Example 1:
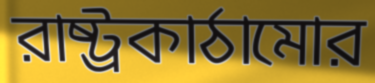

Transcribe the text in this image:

রাষ্ট্রকাঠামোর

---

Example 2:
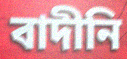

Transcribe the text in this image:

বাদীনি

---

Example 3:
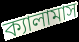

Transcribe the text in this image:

ক্যালামাস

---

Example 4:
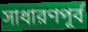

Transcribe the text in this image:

সাধারণপূর্ব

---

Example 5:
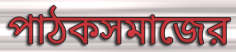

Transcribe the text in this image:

পাঠকসমাজের